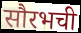
सौरभची